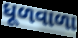
ધૂળવાળા